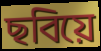
ছবিয়ে